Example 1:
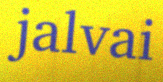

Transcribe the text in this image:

jalvai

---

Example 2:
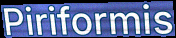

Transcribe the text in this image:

Piriformis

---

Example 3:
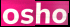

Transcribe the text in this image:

osho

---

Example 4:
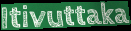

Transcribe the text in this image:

Itivuttaka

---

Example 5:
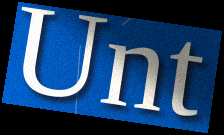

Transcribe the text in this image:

Unt